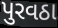
પુરવઠા